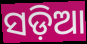
ସଡ଼ିଆ